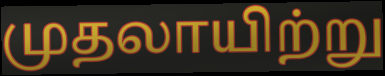
முதலாயிற்று